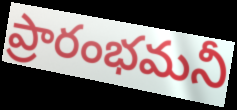
ప్రారంభమనీ